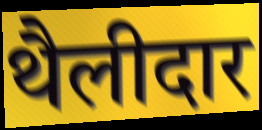
थैलीदार